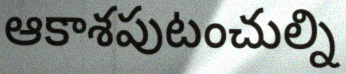
ఆకాశపుటంచుల్ని